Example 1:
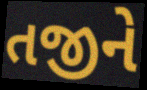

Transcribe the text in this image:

તજીને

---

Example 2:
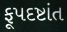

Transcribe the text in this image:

ફૂપદષ્ટાંત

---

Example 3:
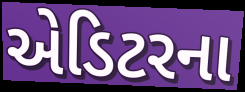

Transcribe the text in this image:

એડિટરના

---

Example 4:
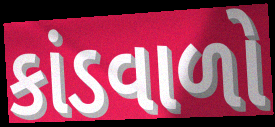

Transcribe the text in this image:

કાંડવાળો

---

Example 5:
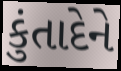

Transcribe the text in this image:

કુંતાદેને